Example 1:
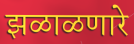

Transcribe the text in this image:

झळाळणारे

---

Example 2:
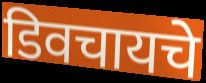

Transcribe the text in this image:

डिवचायचे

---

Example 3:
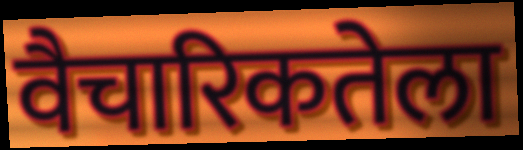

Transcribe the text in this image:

वैचारिकतेला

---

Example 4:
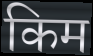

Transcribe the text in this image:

किम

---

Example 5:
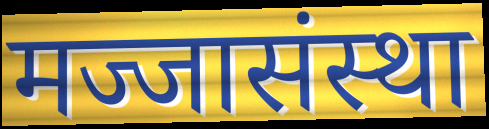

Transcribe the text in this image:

मज्जासंस्था